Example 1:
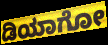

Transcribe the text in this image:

ಡಿಯಾಗೋ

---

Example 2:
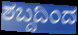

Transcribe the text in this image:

ಶಬ್ದದಿಂದ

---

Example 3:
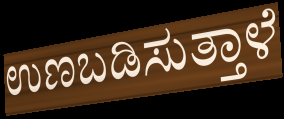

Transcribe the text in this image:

ಉಣಬಡಿಸುತ್ತಾಳೆ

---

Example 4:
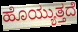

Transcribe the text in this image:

ಹೊಯ್ಯುತ್ತದೆ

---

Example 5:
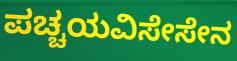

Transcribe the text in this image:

ಪಚ್ಚಯವಿಸೇಸೇನ